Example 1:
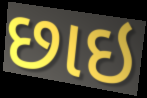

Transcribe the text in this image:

છાઇ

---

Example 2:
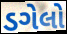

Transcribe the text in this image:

ડગેલો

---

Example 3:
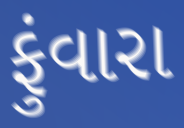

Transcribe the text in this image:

ફુંવારા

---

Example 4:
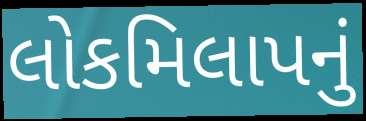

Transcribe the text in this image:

લોકમિલાપનું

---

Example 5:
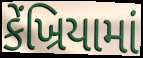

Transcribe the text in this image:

કેંખ્રિયામાં